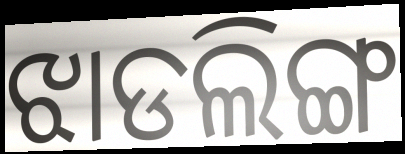
ଝାଡଲିଙ୍ଗ